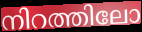
നിറത്തിലോ